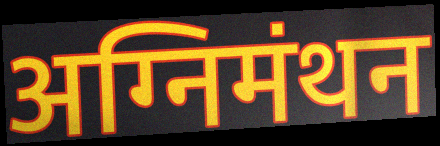
अग्निमंथन